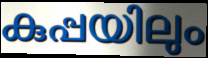
കുപ്പയിലും